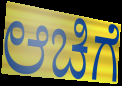
ಆಚಿಗೆ